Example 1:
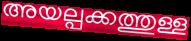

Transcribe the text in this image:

അയല്പക്കത്തുള്ള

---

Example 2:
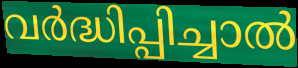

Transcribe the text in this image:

വർദ്ധിപ്പിച്ചാൽ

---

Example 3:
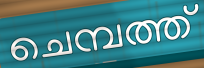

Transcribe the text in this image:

ചെമ്പത്ത്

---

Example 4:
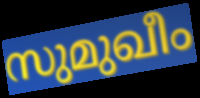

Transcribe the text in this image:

സുമുഖീം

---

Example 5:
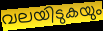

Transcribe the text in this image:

വലയിടുകയും